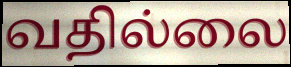
வதில்லை